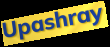
Upashray